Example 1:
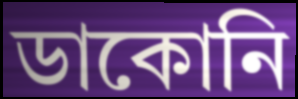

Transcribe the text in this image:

ডাকোনি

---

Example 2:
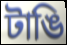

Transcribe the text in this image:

টাঙি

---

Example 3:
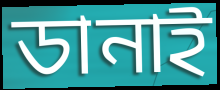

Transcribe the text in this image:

ডানাই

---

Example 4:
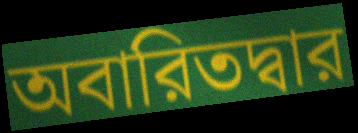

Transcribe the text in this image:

অবারিতদ্বার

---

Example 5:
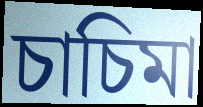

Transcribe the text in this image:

চাচিমা